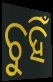
ଚୁହିଁ